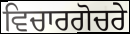
ਵਿਚਾਰਗੋਚਰੇ